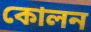
কোলন